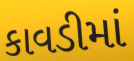
કાવડીમાં